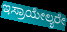
ಇಸ್ರಾಯೇಲ್ಯರೇ